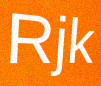
Rjk